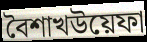
বৈশাখউয়েফা